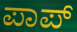
ಪಾಪ್